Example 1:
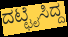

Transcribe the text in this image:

ದಟ್ಟೈಸಿದ್ದ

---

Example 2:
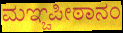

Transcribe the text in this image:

ಮಞ್ಚಪೀಠಾನಂ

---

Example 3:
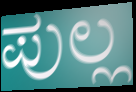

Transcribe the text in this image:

ಪುಲ್ಲ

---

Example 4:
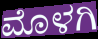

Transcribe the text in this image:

ಮೊಳಗಿ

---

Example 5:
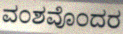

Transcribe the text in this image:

ವಂಶವೊಂದರ